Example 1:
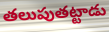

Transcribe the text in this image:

తలుపుతట్టాడు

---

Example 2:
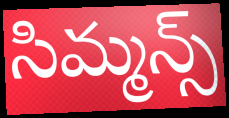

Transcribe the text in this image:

సిమ్మన్స్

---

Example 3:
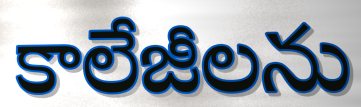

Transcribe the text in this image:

కాలేజీలను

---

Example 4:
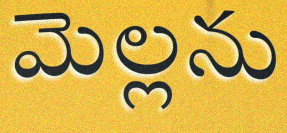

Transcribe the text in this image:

మెల్లను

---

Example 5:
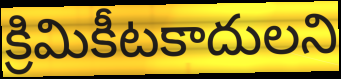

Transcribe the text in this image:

క్రిమికీటకాదులని